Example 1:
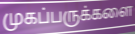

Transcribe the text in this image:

முகப்பருக்களை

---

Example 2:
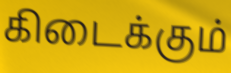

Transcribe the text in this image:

கிடைக்கும்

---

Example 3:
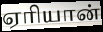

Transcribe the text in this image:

ஏரியான்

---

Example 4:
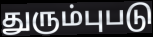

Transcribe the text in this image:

துரும்புபடு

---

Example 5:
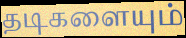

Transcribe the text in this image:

தடிகளையும்